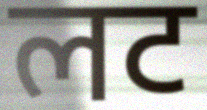
लट